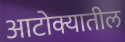
आटोक्यातील